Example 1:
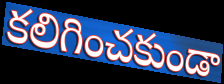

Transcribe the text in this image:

కలిగించకుండా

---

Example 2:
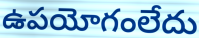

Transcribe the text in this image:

ఉపయోగంలేదు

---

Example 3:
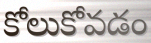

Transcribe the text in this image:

కోలుకోవడం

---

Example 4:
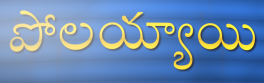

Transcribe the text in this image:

పోలయ్యాయి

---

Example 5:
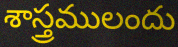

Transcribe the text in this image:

శాస్త్రములందు